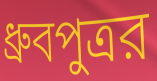
ধ্রুবপুত্রর